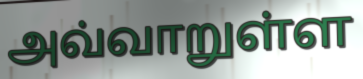
அவ்வாறுள்ள